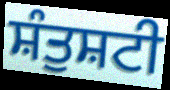
ਸ਼ੰਤੁਸ਼ਟੀ